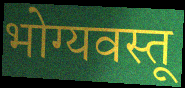
भोग्यवस्तू